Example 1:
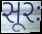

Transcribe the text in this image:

સૂરઃ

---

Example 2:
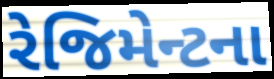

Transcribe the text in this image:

રેજિમેન્ટના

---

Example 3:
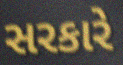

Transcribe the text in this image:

સરકારે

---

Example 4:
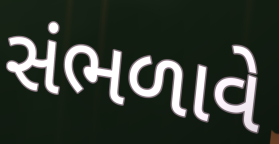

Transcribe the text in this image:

સંભળાવે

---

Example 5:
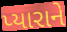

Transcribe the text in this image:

પ્યારાને